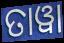
ତାୱା